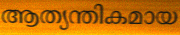
ആത്യന്തികമായ